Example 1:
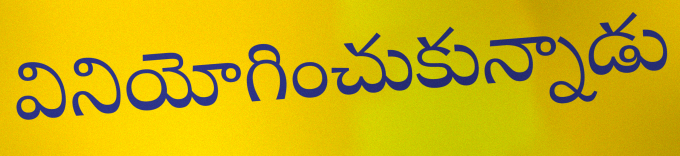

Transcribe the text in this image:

వినియోగించుకున్నాడు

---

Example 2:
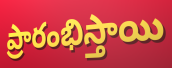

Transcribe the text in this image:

ప్రారంభిస్తాయి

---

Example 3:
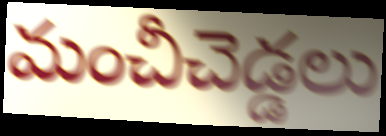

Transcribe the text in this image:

మంచీచెడ్డలు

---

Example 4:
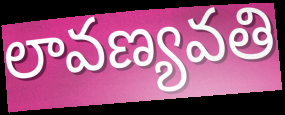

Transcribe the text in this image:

లావణ్యవతి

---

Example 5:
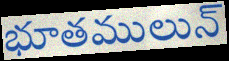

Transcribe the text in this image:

భూతములున్